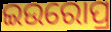
ଇଉରୋପ୍ର